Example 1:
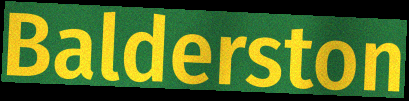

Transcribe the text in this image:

Balderston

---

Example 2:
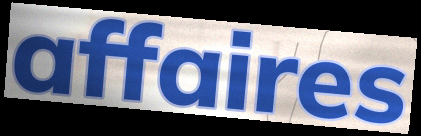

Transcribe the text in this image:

affaires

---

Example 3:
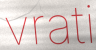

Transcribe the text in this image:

vrati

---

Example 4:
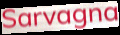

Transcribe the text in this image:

Sarvagna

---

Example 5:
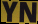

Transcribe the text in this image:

YN